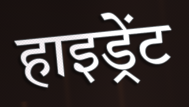
हाइड्रेंट